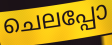
ചെലപ്പോ